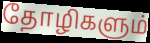
தோழிகளும்